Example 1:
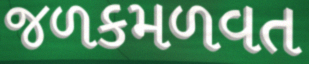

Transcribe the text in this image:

જળકમળવત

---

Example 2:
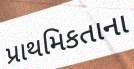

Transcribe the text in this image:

પ્રાથમિકતાના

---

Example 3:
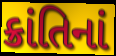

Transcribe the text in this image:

ક્રાંતિનાં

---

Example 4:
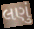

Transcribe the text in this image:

લણું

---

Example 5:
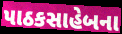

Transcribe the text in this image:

પાઠકસાહેબના